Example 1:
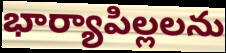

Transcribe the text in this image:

భార్యాపిల్లలను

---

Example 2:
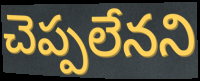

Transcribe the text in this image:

చెప్పలేనని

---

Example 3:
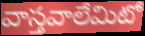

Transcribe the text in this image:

వాస్తవాలేమిటో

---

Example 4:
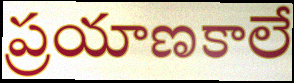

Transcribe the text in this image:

ప్రయాణకాలే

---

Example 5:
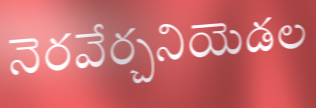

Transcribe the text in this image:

నెరవేర్చనియెడల